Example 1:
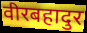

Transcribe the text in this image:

वीरबहादुर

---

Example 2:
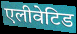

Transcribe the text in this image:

एलीवेटिड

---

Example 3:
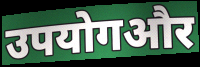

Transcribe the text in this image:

उपयोगऔर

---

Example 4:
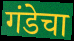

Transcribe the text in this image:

गंडेचा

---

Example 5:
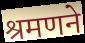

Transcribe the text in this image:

श्रमणने